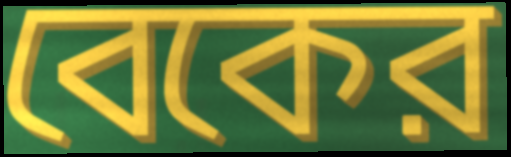
বেকের